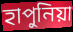
হাপুনিয়া